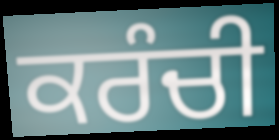
ਕਰੰਚੀ